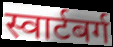
स्वार्टबर्ग